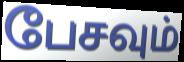
பேசவும்